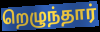
றெழுந்தார்